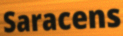
Saracens